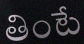
తింటే